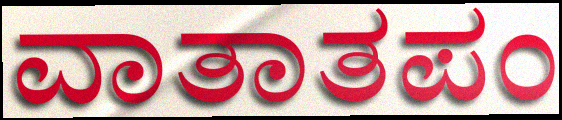
ವಾತಾತಪಂ